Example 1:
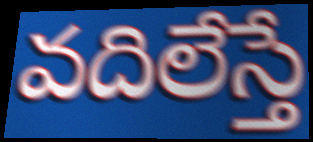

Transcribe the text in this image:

వదిలేస్తే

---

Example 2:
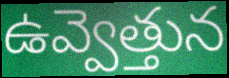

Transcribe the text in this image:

ఉవ్వెత్తున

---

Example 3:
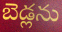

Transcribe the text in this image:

బెడ్లను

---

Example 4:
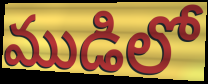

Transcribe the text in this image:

ముడిలో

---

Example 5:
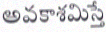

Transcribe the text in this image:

అవకాశమిస్తే